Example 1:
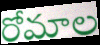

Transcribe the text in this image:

రోమాల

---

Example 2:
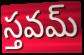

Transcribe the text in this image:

స్తవమ్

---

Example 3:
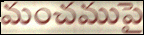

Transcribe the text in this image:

మంచముపై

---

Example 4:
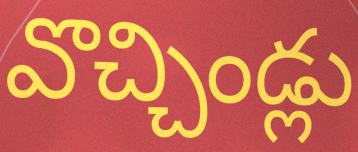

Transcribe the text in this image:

వొచ్చిండ్లు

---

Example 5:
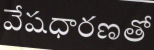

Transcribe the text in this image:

వేషధారణతో